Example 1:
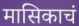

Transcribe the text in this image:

मासिकाचं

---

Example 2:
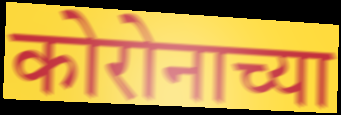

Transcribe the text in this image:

कोरोनाच्या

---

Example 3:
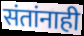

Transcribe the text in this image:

संतांनाही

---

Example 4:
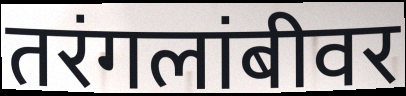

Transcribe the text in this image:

तरंगलांबीवर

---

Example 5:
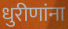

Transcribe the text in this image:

धुरीणांना